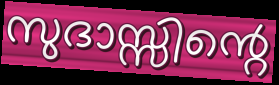
സുദാസ്സിന്റെ